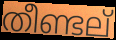
തീണ്ടല്